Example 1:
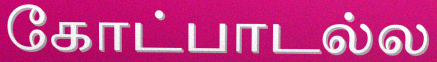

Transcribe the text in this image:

கோட்பாடல்ல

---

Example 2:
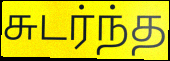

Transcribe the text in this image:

சுடர்ந்த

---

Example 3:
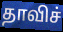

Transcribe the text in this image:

தாவிச்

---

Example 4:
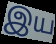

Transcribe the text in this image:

இய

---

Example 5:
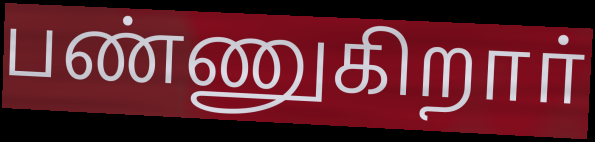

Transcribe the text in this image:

பண்ணுகிறார்